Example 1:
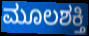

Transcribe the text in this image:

ಮೂಲಶಕ್ತಿ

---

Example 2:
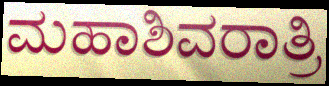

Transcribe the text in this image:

ಮಹಾಶಿವರಾತ್ರಿ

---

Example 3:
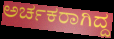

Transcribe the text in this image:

ಅರ್ಚಕರಾಗಿದ್ದ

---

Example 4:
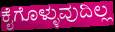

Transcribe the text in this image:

ಕೈಗೊಳ್ಳುವುದಿಲ್ಲ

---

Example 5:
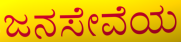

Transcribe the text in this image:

ಜನಸೇವೆಯ